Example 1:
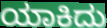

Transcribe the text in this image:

ಯಾಕಿದು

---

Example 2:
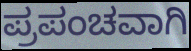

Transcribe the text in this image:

ಪ್ರಪಂಚವಾಗಿ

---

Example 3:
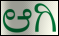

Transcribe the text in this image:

ಆಗಿ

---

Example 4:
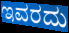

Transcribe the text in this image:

ಇವರದು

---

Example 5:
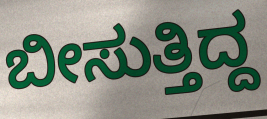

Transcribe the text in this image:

ಬೀಸುತ್ತಿದ್ದ